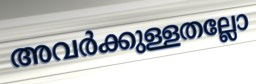
അവർക്കുള്ളതല്ലോ